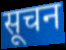
सूचन